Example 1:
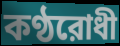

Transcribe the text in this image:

কণ্ঠরোধী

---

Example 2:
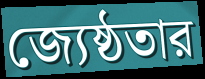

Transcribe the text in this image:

জ্যেষ্ঠতার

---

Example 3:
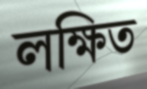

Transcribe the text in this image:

লক্ষিত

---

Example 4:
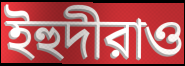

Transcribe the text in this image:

ইহুদীরাও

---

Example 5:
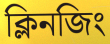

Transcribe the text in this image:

ক্লিনজিং